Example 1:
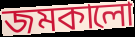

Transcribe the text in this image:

জমকালো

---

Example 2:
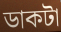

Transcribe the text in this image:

ডাকটা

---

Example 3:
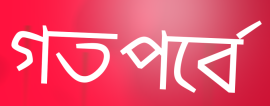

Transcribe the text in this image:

গতপর্বে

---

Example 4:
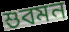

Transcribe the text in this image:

শুবমন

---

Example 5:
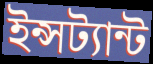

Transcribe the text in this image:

ইন্সট্যান্ট